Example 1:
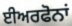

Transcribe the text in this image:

ਈਅਰਫੋਨਾਂ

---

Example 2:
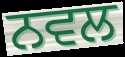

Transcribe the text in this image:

ਨਵਲ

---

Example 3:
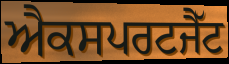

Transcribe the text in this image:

ਐਕਸਪਰਟਜੈੱਟ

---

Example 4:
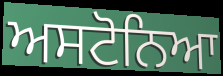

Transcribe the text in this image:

ਅਸਟੋਨਿਆ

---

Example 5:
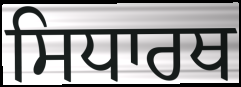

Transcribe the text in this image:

ਸਿਧਾਰਥ